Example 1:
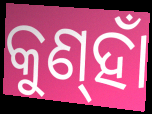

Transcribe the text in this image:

କୁଣ୍‌ହାଁ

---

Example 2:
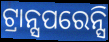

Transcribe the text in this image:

ଟ୍ରାନ୍ସପରେନ୍ସି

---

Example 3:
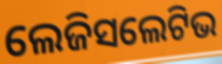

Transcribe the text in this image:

ଲେଜିସଲେଟିଭ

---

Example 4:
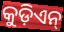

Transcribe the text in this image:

କୁଡ଼ିଏନ୍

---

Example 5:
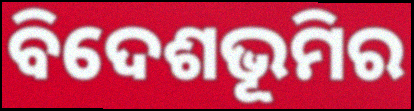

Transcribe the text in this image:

ବିଦେଶଭୂମିର